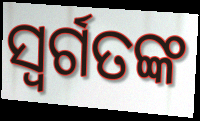
ସ୍ୱର୍ଗତଙ୍କ